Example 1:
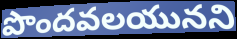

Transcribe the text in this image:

పొందవలయునని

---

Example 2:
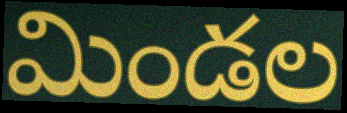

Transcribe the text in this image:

మిండల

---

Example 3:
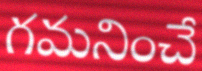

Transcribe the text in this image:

గమనించే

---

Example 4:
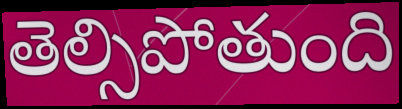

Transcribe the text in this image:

తెల్సిపోతుంది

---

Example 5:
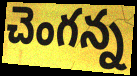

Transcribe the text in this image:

చెంగన్న